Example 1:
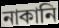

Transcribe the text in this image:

নাকানি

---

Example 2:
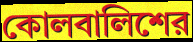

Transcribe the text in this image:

কোলবালিশের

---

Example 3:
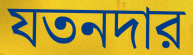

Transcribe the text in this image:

যতনদার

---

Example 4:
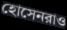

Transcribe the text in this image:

হোসেনরাও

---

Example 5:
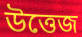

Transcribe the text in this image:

উত্তেজ